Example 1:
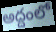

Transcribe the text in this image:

అద్దంలో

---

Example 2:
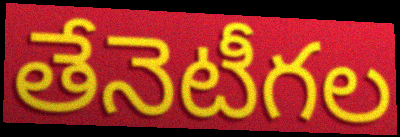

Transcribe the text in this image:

తేనెటీగల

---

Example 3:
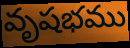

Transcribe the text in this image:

వృషభము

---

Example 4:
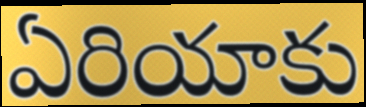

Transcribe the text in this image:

ఏరియాకు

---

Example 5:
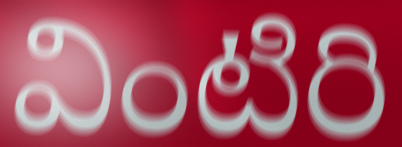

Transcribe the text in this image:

వింటిరి